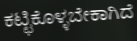
ಕಟ್ಟಿಕೊಳ್ಳಬೇಕಾಗಿದೆ